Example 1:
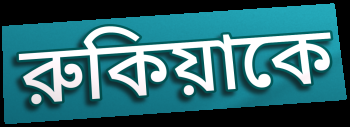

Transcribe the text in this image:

রুকিয়াকে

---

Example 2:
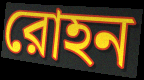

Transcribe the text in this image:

রোহন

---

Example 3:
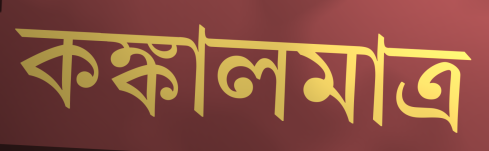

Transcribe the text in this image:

কঙ্কালমাত্র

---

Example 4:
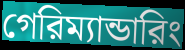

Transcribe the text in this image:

গেরিম্যান্ডারিং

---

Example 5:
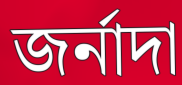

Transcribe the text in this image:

জর্নাদা